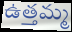
ఉత్తమ్మ